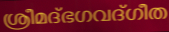
ശ്രീമദ്ഭഗവദ്ഗീത